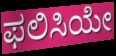
ಫಲಿಸಿಯೇ